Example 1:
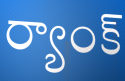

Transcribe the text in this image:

ర్యాంక్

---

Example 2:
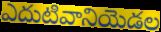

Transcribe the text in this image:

ఎదుటివానియెడల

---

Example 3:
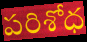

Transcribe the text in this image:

పరిశోధ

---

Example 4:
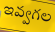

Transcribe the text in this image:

ఇవ్వగల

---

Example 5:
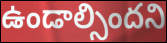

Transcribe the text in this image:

ఉండాల్సిందని